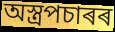
অস্ত্ৰপচাৰৰ